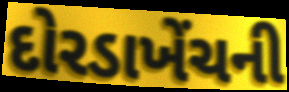
દોરડાખેંચની